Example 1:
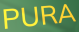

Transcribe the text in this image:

PURA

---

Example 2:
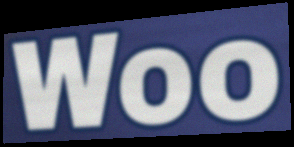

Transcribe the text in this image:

Woo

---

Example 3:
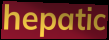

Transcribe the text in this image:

hepatic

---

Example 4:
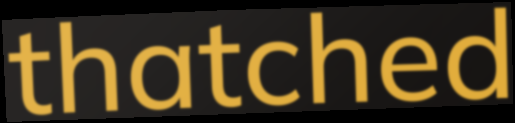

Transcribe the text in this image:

thatched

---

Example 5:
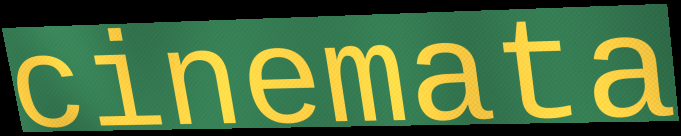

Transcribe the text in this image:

cinemata